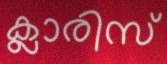
ക്ലാരിസ്